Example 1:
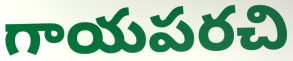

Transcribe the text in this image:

గాయపరచి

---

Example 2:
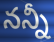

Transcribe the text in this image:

నన్నీ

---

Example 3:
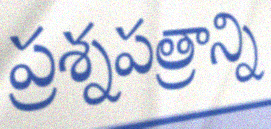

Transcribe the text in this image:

ప్రశ్నపత్రాన్ని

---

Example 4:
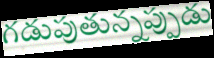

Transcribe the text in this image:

గడుపుతున్నప్పుడు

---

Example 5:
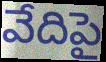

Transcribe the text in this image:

వేదిపై